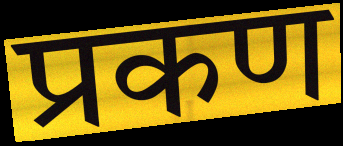
प्रकण